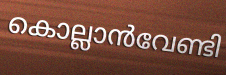
കൊല്ലാൻവേണ്ടി